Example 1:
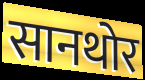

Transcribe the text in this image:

सानथोर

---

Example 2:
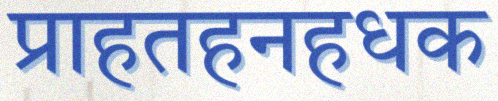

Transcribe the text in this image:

प्राहतहनहधक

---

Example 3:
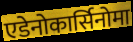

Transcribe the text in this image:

एडेनोकार्सिनोमा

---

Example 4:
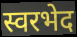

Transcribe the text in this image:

स्वरभेद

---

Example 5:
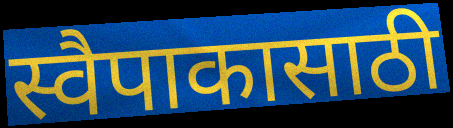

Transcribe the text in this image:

स्वैपाकासाठी